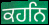
ਕਹਨਿ